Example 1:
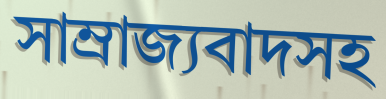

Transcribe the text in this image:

সাম্রাজ্যবাদসহ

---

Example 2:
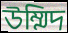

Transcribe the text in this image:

উম্মিদ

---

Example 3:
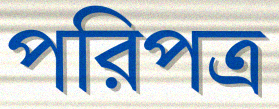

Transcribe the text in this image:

পরিপত্র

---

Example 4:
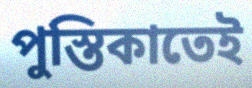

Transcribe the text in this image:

পুস্তিকাতেই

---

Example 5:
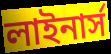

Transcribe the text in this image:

লাইনার্স